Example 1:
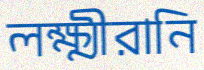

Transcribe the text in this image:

লক্ষ্মীরানি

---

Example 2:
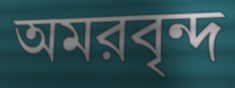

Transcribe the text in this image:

অমরবৃন্দ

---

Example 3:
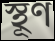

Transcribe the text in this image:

স্থূণ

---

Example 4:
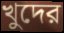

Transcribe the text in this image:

খুদের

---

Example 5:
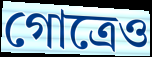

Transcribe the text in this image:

গোত্রেও